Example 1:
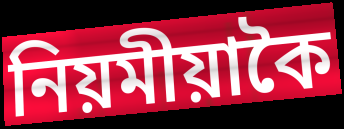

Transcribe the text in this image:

নিয়মীয়াকৈ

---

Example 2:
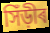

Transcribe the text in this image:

সিঁড়ীৰ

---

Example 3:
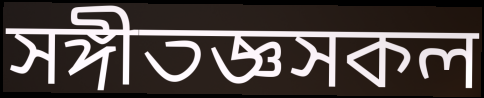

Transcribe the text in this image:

সঙ্গীতজ্ঞসকল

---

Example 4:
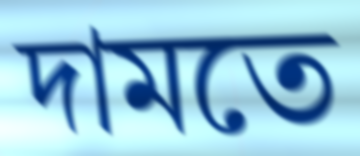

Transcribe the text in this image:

দামতে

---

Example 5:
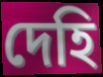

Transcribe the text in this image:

দেহি